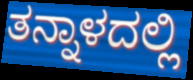
ತನ್ನಾಳದಲ್ಲಿ